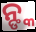
ନ୍ଙ୍କ